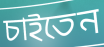
চাইতেন